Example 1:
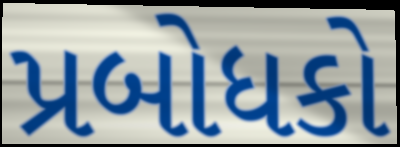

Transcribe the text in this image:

પ્રબોધકો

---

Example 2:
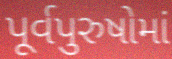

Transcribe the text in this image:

પૂર્વપુરુષોમાં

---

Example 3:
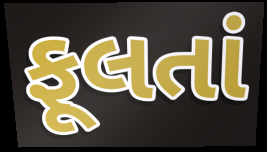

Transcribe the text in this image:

ફૂલતાં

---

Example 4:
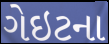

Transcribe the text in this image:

ગેઇટના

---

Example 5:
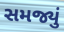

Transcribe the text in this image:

સમજ્યું